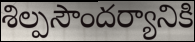
శిల్పసౌందర్యానికి